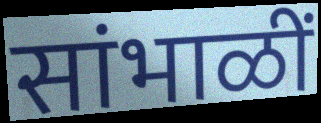
सांभाळीं